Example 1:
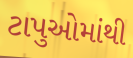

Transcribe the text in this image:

ટાપુઓમાંથી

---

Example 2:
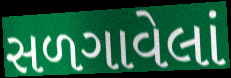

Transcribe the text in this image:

સળગાવેલાં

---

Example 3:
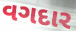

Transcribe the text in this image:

વગદાર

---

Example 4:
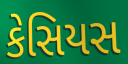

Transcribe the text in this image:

કેસિયસ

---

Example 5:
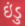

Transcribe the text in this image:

ઇંડુ